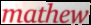
mathew